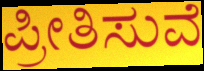
ಪ್ರೀತಿಸುವೆ